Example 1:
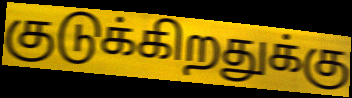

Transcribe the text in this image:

குடுக்கிறதுக்கு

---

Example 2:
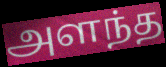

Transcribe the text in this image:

அளந்த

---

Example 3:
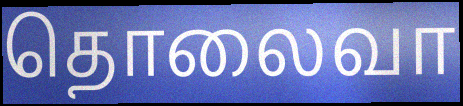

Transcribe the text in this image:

தொலைவா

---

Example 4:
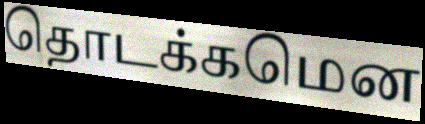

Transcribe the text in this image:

தொடக்கமென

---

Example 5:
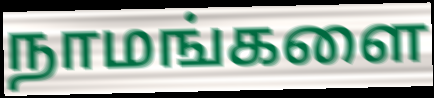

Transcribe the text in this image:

நாமங்களை